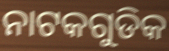
ନାଟକଗୁଡିକ